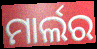
ମାର୍ଲର